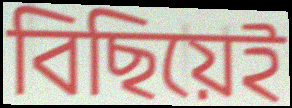
বিছিয়েই